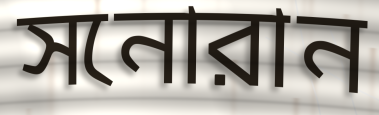
সনোরান